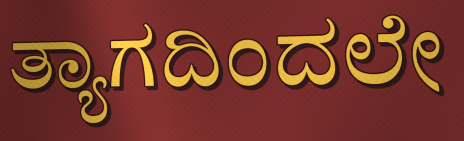
ತ್ಯಾಗದಿಂದಲೇ